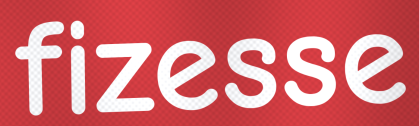
fizesse